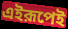
এইরূপেই